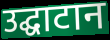
उद्घाटान